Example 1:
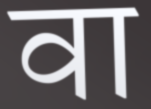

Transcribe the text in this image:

वा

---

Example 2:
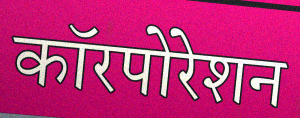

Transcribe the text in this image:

कॉरपोरेशन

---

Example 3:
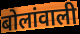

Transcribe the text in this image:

बोलांवाली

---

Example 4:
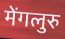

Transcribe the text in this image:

मेंगलुरु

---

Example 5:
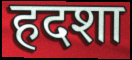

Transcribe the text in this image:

हदशा